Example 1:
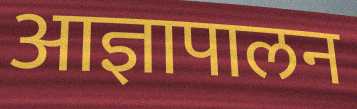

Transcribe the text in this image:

आज्ञापालन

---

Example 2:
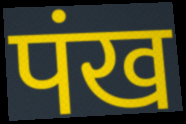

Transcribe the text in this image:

पंख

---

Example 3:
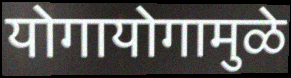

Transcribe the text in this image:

योगायोगामुळे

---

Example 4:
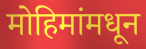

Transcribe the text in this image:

मोहिमांमधून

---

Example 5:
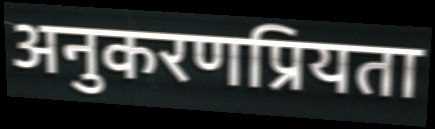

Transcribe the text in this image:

अनुकरणप्रियता